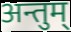
अन्तुम्